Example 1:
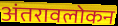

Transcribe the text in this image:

अंतरावलोकन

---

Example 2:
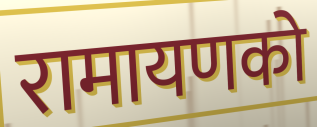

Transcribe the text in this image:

रामायणको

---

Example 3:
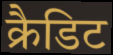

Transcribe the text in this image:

क्रैडिट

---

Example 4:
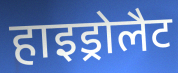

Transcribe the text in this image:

हाइड्रोलैट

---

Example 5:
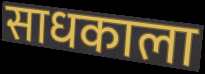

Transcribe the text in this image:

साधकाला